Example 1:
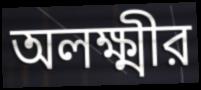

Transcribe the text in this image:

অলক্ষ্মীর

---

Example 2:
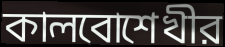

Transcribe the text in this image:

কালবোশেখীর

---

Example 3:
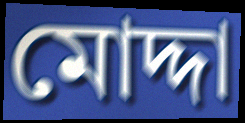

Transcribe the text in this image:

মোদ্দা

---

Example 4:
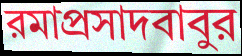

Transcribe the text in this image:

রমাপ্রসাদবাবুর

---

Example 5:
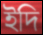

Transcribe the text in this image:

ইদি